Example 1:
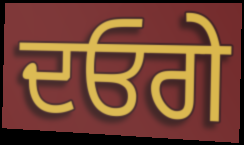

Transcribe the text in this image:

ਦਓਗੇ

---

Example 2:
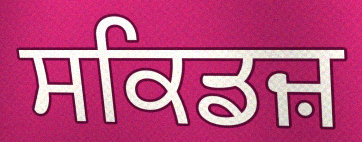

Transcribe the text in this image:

ਸਕਿਡਜ਼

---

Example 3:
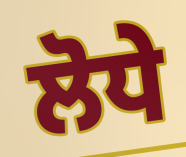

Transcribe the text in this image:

ਲੋਧੇ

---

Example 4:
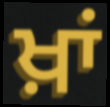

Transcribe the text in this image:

ਖ਼ਾਂ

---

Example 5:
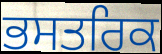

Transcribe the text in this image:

ਭਸਤਰਿਕ